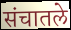
संचातले